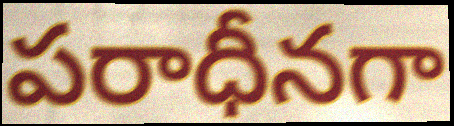
పరాధీనగా